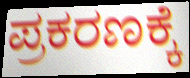
ಪ್ರಕರಣಕ್ಕೆ